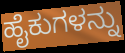
ಹೈಕುಗಳನ್ನು